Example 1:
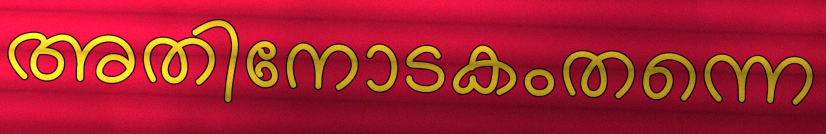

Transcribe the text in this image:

അതിനോടകംതന്നെ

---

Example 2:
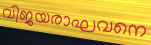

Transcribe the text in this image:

വിജയരാഘവനെ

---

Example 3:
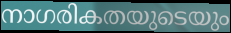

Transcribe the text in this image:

നാഗരികതയുടെയും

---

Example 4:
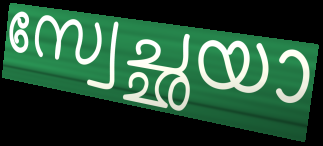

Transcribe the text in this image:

സ്വേച്ഛയാ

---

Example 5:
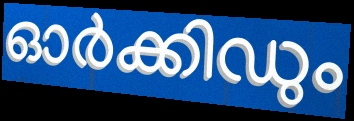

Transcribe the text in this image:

ഓർക്കിഡും